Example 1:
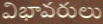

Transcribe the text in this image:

విభావరులు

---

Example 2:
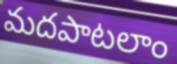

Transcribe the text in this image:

మదపాటలాం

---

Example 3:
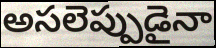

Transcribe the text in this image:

అసలెప్పుడైనా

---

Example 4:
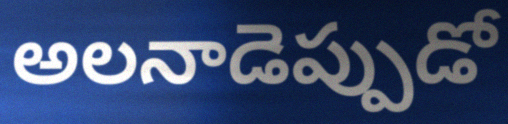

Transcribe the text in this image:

అలనాడెప్పుడో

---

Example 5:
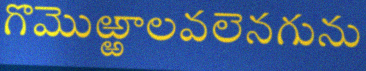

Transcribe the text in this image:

గొమొఱ్ఱాలవలెనగును